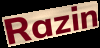
Razin